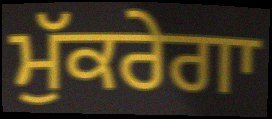
ਮੁੱਕਰੇਗਾ